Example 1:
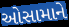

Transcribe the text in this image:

ઓસામાને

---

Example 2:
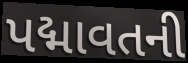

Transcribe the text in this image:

પદ્માવતની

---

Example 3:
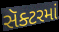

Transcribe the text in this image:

સૅક્ટરમાં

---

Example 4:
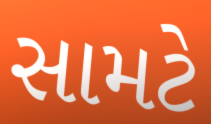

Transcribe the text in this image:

સામટે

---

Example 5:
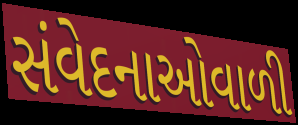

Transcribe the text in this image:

સંવેદનાઓવાળી